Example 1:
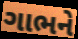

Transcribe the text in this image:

ગાભને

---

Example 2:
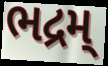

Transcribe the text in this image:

ભદ્રમ્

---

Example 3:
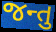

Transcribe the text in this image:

જન્તુ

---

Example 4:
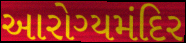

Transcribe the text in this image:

આરોગ્યમંદિર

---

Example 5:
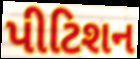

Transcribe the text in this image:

પીટિશન